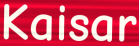
Kaisar